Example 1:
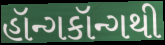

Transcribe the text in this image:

હૉન્ગકૉન્ગથી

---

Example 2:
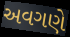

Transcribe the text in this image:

અવગણે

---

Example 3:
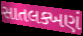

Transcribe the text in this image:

સાતલક્ખણં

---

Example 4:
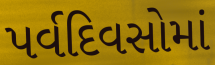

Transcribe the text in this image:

પર્વદિવસોમાં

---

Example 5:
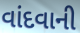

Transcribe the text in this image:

વાંદવાની